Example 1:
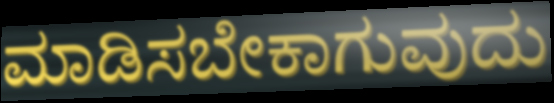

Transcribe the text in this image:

ಮಾಡಿಸಬೇಕಾಗುವುದು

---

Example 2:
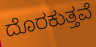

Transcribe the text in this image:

ದೊರಕುತ್ತವೆ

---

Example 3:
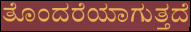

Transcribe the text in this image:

ತೊಂದರೆಯಾಗುತ್ತದೆ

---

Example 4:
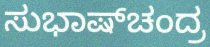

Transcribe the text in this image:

ಸುಭಾಷ್‌ಚಂದ್ರ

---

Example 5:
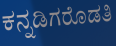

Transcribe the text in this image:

ಕನ್ನಡಿಗರೊಡತಿ